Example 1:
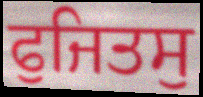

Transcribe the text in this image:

ਫੁਜਿਤਸੁ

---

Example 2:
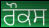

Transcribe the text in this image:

ਰੌਕਸ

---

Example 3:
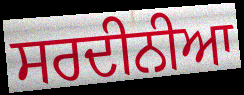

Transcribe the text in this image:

ਸਰਦੀਨੀਆ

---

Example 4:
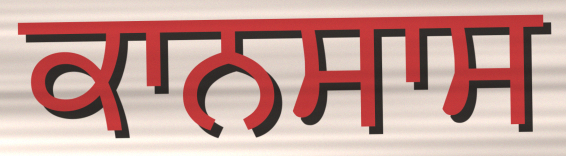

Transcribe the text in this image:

ਕਾਨਸਾਸ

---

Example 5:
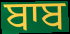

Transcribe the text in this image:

ਬਾਬ